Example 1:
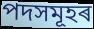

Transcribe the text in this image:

পদসমূহৰ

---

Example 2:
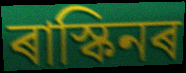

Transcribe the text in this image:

ৰাস্কিনৰ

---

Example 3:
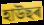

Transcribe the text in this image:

হাউছৰ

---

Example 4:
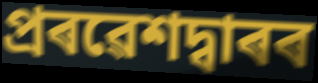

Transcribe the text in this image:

প্ৰৰৱেশদ্বাৰৰ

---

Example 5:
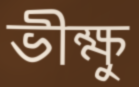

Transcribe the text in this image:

ভীক্ষু